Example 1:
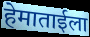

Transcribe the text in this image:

हेमाताईला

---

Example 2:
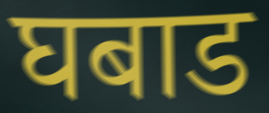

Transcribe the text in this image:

घबाड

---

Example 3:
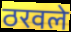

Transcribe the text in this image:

ठरवले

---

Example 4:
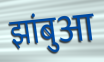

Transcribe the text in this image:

झांबुआ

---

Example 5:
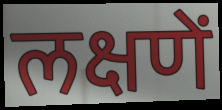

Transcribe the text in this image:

लक्षणें